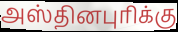
அஸ்தினபுரிக்கு